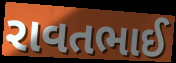
રાવતભાઈ